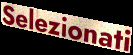
Selezionati